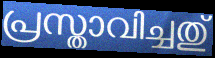
പ്രസ്താവിച്ചതു്